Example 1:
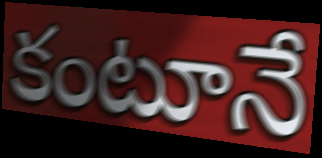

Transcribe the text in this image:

కంటూనే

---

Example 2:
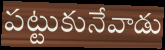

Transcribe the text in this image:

పట్టుకునేవాడు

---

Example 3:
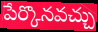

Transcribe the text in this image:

పేర్కొనవచ్చు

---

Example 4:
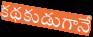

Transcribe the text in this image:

కథకుడుగానే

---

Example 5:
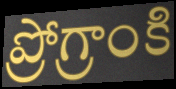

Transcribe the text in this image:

ప్రోగ్రాంకి